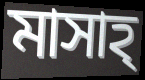
মাসাহ্